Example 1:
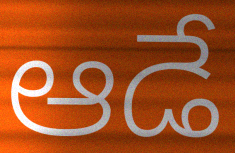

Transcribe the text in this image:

ఆడే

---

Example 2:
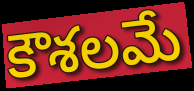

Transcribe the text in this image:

కౌశలమే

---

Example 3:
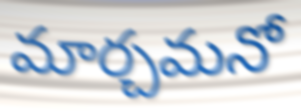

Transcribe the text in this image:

మార్చమనో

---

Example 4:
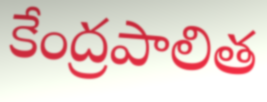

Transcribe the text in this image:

కేంద్రపాలిత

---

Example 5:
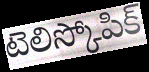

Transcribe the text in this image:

టెలిస్కోపిక్